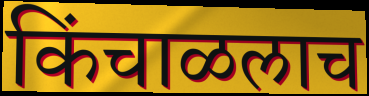
किंचाळलाच